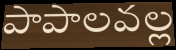
పాపాలవల్ల